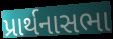
પ્રાર્થનાસભા